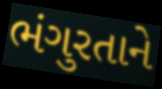
ભંગુરતાને